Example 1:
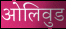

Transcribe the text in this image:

ओलिवुड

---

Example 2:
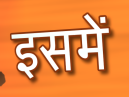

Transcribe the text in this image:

इसमें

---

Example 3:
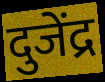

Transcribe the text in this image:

दुजेंद्र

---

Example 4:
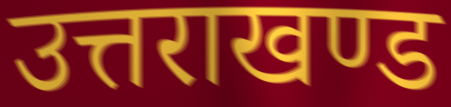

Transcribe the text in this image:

उत्तराखण्ड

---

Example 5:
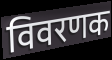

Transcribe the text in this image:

विवरणक